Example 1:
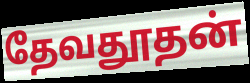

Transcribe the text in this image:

தேவதூதன்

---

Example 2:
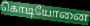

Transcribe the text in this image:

கொடியோனை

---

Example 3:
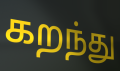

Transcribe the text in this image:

கறந்து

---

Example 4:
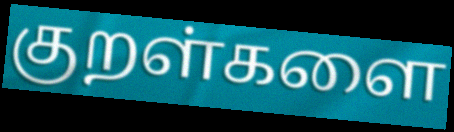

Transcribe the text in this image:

குறள்களை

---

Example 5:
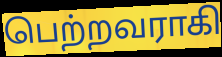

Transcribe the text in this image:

பெற்றவராகி